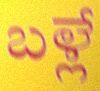
బళ్లే